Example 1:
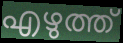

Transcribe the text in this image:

എഴുത്ത്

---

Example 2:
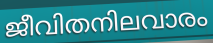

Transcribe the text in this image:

ജീവിതനിലവാരം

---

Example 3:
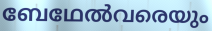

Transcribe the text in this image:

ബേഥേൽവരെയും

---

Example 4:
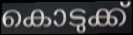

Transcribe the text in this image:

കൊടുക്ക്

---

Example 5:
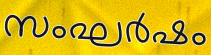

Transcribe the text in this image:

സംഘർഷം